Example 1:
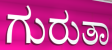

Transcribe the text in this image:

ಗುರುತಾ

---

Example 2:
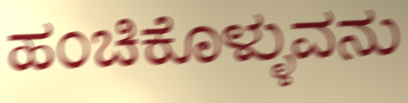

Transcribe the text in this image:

ಹಂಚಿಕೊಳ್ಳುವನು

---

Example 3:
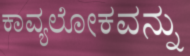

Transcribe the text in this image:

ಕಾವ್ಯಲೋಕವನ್ನು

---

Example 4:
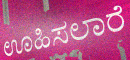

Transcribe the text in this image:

ಊಹಿಸಲಾರೆ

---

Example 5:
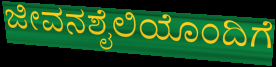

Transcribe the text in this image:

ಜೀವನಶೈಲಿಯೊಂದಿಗೆ